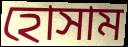
হোসাম